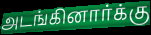
அடங்கினார்க்கு